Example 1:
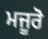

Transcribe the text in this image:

ਮਜੂਰੋ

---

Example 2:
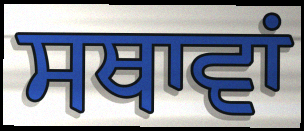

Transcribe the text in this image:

ਸਥਾਵਾਂ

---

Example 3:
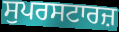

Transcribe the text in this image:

ਸੁਪਰਸਟਾਰਜ਼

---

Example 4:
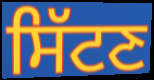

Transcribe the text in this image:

ਸਿੱਟਣ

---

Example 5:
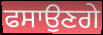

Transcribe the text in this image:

ਫਸਾਉਣਗੇ